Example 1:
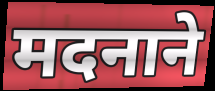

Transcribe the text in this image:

मदनाने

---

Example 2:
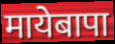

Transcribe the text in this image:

मायेबापा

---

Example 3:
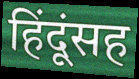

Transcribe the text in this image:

हिंदूंसह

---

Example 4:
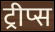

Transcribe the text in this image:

ट्रीप्स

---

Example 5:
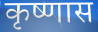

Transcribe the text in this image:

कृष्णास